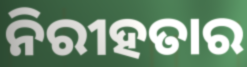
ନିରୀହତାର